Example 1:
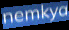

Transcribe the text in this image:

nemkya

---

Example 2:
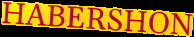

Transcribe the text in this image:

HABERSHON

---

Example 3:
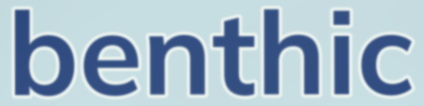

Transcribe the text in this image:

benthic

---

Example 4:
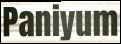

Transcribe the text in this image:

Paniyum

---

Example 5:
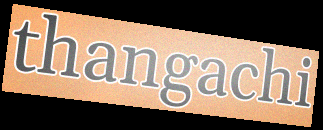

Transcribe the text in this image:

thangachi